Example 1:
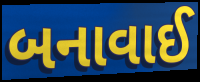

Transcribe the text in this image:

બનાવાઈ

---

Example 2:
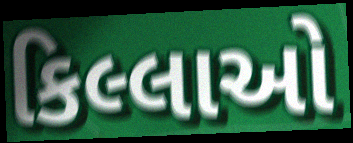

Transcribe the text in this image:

કિલ્લાઓ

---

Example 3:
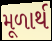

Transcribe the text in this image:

મૂળાર્થ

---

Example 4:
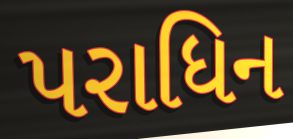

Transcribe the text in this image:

પરાધિન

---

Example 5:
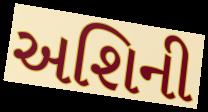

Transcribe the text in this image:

અશિની